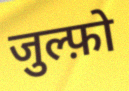
जुल्फ़ो